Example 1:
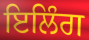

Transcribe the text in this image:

ਇਲਿੰਗ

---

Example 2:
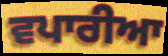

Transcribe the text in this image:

ਵਪਾਰੀਆ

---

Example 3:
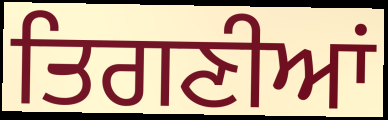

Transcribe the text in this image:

ਤਿਗਣੀਆਂ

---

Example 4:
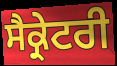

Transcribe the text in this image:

ਸੈਕ੍ਰੇਟਰੀ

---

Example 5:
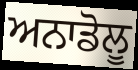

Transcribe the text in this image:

ਅਨਾਡੋਲੂ